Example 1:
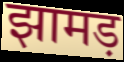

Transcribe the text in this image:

झामड़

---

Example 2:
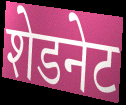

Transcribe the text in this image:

शेडनेट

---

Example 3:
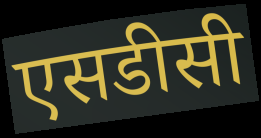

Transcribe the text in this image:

एसडीसी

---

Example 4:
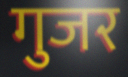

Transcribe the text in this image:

गुजर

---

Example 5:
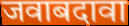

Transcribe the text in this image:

जवाबदावा